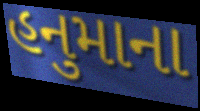
હનુમાના